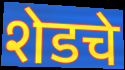
शेडचे